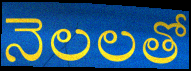
నెలలతో